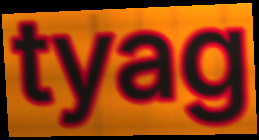
tyag